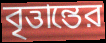
বৃত্তান্তের